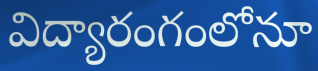
విద్యారంగంలోనూ